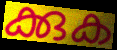
ക്കുക